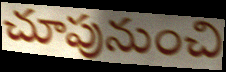
చూపునుంచి